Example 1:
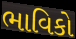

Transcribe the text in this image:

ભાવિકો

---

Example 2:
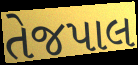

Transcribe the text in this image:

તેજપાલ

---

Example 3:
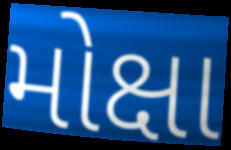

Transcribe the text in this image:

મોક્ષા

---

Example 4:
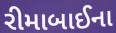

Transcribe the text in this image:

રીમાબાઈના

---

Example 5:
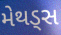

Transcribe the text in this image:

મેથડ્સ